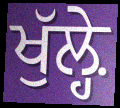
ਖੁੱਲ਼੍ਹੇ